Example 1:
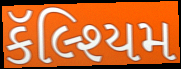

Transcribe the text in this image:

કૅલ્શ્યિમ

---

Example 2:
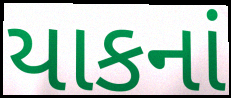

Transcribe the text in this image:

યાકનાં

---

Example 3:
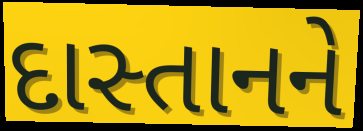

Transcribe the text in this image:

દાસ્તાનને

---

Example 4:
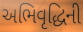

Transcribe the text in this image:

અભિવૃદ્ધિની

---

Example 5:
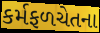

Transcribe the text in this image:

કર્મફળચેતના